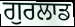
ਗੁਰਲਾਡ